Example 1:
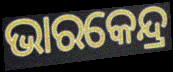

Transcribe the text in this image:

ଭାରକେନ୍ଦ୍ର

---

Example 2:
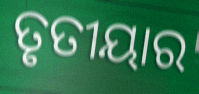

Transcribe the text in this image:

ତୃତୀୟାର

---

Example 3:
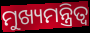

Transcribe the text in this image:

ମୁଖ୍ୟମନ୍ତ୍ରିତ୍ୱ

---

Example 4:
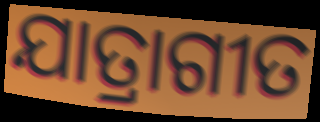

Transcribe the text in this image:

ଯାତ୍ରାଗୀତ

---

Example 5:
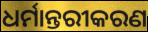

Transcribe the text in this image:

ଧର୍ମାନ୍ତରୀକରଣ